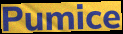
Pumice